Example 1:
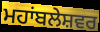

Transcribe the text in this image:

ਮਹਾਂਬਲੇਸ਼ਵਰ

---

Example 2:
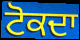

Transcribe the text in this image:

ਟੋਕਦਾ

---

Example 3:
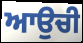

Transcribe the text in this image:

ਆਉਚੀ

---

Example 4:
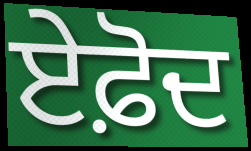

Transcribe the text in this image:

ਏਫ਼ੋਦ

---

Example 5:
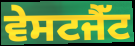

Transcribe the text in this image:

ਵੇਸਟਜੈੱਟ